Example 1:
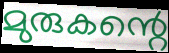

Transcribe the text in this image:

മുരുകന്റെ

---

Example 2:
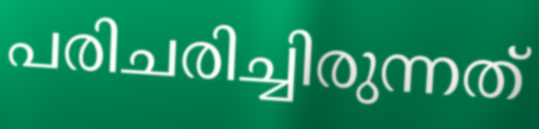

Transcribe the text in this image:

പരിചരിച്ചിരുന്നത്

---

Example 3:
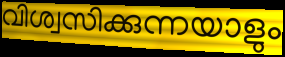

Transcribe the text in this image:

വിശ്വസിക്കുന്നയാളും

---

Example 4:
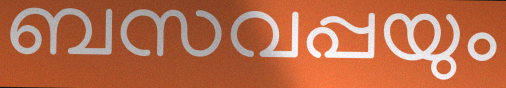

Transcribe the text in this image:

ബസവപ്പയും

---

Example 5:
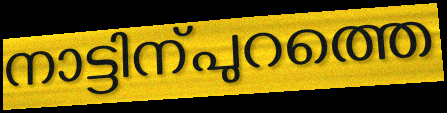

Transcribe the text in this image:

നാട്ടിന്പുറത്തെ